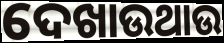
ଦେଖାଉଥାଉ